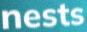
nests